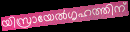
യിസ്രായേൽഗൃഹത്തിന്